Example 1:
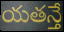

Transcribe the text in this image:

యతన్తే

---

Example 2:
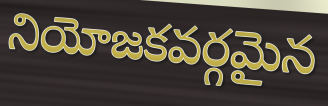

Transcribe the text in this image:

నియోజకవర్గమైన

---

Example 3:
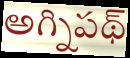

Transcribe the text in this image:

అగ్నిపథ్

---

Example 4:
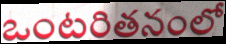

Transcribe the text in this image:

ఒంటరితనంలో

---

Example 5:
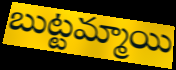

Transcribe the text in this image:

బుట్టమ్మాయి